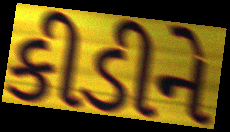
કીડીને